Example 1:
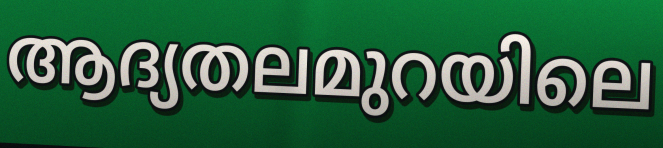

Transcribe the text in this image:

ആദ്യതലമുറയിലെ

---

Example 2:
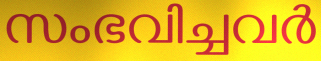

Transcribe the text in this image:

സംഭവിച്ചവർ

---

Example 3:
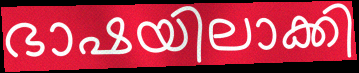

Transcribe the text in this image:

ഭാഷയിലാക്കി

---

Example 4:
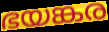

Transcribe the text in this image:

ഭയങ്കര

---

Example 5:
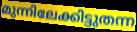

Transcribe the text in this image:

മുന്നിലേക്കിട്ടുതന്ന